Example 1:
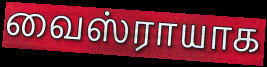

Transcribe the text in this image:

வைஸ்ராயாக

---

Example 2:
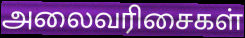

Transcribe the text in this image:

அலைவரிசைகள்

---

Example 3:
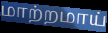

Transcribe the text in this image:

மாற்றமாய்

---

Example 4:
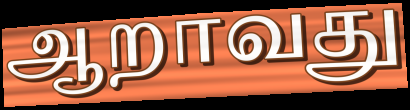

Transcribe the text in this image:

ஆறாவது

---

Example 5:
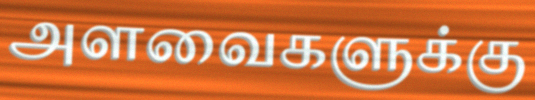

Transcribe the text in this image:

அளவைகளுக்கு